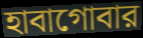
হাবাগোবার